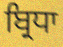
ਬ੍ਰਿਧਾ